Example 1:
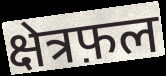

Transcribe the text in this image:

क्षेत्रफ़ल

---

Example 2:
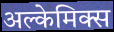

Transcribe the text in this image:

अल्केमिक्स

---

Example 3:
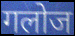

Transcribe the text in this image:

गलोज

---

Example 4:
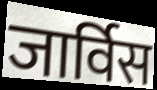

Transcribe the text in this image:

जार्विस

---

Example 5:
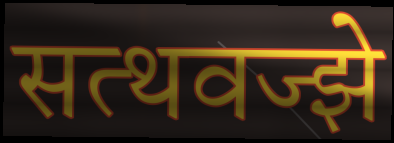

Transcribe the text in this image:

सत्थवज्झे